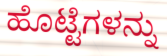
ಹೊಟ್ಟೆಗಳನ್ನು